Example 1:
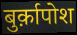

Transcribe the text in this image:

बुर्क़ापोश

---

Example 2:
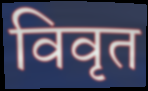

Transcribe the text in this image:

विवृत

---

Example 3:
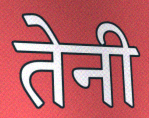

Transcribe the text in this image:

तेनी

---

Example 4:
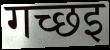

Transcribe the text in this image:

गच्छइ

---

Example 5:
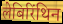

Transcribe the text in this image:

लेबिरिंथिन